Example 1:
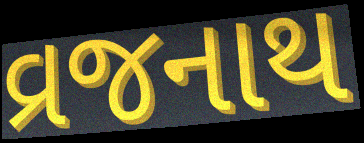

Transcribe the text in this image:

વ્રજનાથ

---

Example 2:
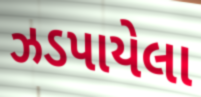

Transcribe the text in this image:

ઝડપાયેલા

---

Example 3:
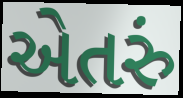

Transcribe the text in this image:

એતરું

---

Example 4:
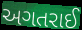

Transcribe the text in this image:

અગતરાઈ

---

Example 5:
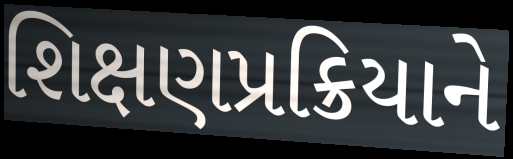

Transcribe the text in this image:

શિક્ષણપ્રક્રિયાને